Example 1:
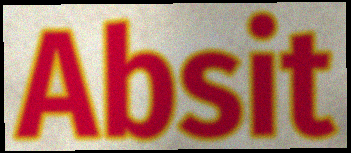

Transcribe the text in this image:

Absit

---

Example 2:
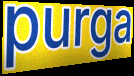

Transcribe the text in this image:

purga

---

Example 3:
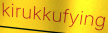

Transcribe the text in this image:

kirukkufying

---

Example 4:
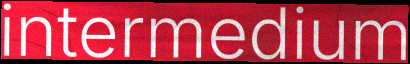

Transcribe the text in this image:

intermedium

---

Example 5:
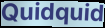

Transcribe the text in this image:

Quidquid